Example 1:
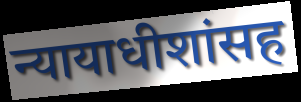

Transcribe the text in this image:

न्यायाधीशांसह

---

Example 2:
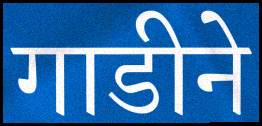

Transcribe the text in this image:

गाडीने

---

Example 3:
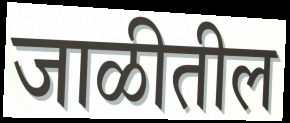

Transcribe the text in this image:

जाळीतील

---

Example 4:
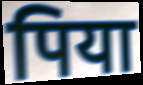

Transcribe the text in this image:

पिया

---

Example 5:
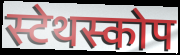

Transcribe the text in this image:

स्टेथस्कोप